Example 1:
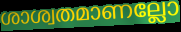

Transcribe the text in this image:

ശാശ്വതമാണല്ലോ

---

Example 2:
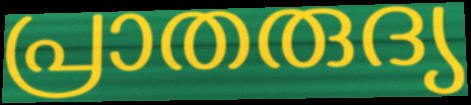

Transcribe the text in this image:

പ്രാതരുദ്യ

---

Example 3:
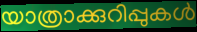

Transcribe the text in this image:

യാത്രാക്കുറിപ്പുകൾ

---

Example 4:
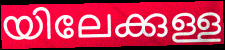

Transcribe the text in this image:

യിലേക്കുള്ള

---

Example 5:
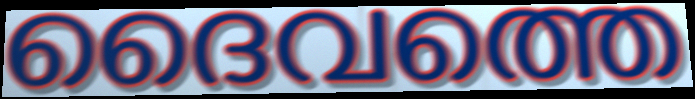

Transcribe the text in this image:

ദൈവത്തെ